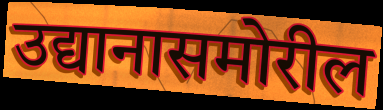
उद्यानासमोरील